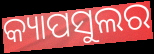
କ୍ୟାପସୁଲର